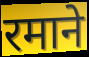
रमाने